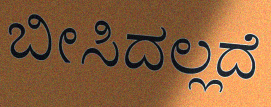
ಬೀಸಿದಲ್ಲದೆ